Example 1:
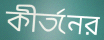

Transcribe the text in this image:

কীর্তনের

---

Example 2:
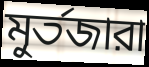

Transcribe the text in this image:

মুর্তজারা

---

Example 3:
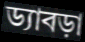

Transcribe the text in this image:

ড্যাবড়া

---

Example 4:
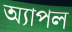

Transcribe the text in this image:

অ্যাপল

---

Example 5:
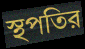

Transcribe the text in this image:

স্থপতির